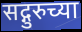
सद्गुरुच्या